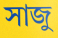
সাজু